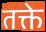
तक्ते